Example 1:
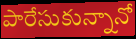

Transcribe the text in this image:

పారేసుకున్నానో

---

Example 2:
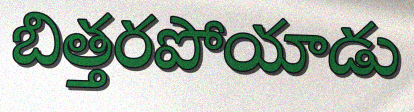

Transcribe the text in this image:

బిత్తరపోయాడు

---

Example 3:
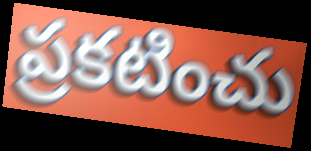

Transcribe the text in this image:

ప్రకటించు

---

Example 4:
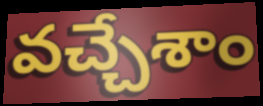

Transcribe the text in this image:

వచ్చేశాం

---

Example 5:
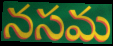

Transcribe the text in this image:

నసమ